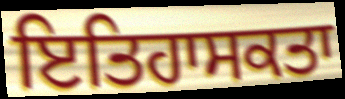
ਇਤਿਹਾਸਕਤਾ